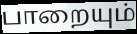
பாறையும்